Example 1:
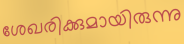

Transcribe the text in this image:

ശേഖരിക്കുമായിരുന്നു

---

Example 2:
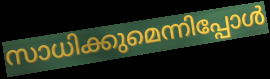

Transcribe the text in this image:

സാധിക്കുമെന്നിപ്പോൾ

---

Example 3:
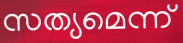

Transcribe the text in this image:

സത്യമെന്ന്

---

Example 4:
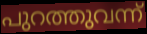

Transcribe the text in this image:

പുറത്തുവന്ന്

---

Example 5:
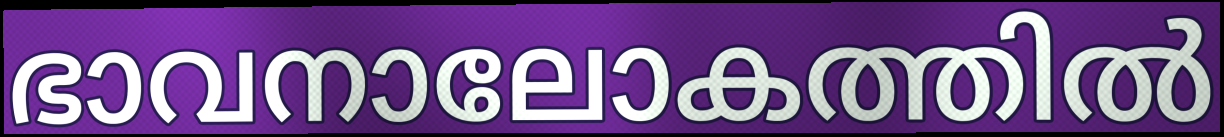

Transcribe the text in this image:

ഭാവനാലോകത്തിൽ